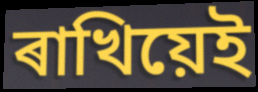
ৰাখিয়েই